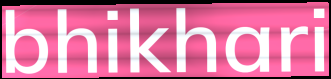
bhikhari